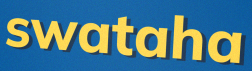
swataha